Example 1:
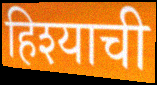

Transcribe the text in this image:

हिश्याची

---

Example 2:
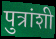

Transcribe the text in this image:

पुत्रांशी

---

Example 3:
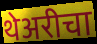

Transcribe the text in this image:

थेअरीचा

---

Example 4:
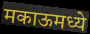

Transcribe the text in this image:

मकाऊमध्ये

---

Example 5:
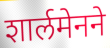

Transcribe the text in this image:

शार्लमेनने